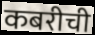
कबरीची